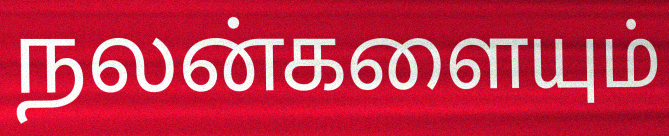
நலன்களையும்